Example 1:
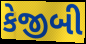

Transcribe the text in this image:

કેજીબી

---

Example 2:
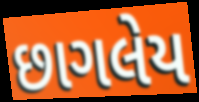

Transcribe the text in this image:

છાગલેય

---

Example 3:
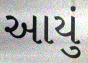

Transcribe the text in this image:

આયું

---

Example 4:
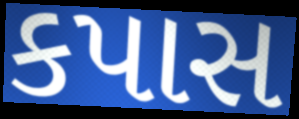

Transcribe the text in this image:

કપાસ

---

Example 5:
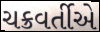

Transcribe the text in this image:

ચક્રવર્તીએ